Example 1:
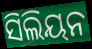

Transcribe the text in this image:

ସିଲିୟନ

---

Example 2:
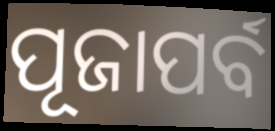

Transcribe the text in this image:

ପୂଜାପର୍ବ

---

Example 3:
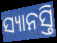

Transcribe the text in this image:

ସ୍ୟାନସ୍ତି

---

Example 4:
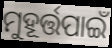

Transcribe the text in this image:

ମୁହୂର୍ତ୍ତପାଇଁ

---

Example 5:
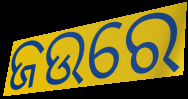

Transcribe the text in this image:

ଜଉରେ